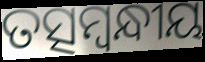
ତତ୍ସମ୍ବନ୍ଧୀୟ